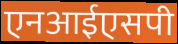
एनआईएसपी